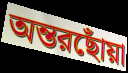
অন্তরছোঁয়া